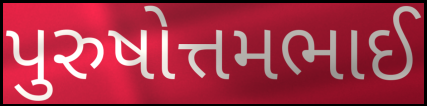
પુરુષોત્તમભાઈ